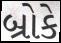
બ્રોકે